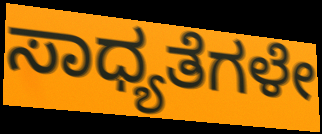
ಸಾಧ್ಯತೆಗಳೇ